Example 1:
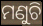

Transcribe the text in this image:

ମଣୁଚି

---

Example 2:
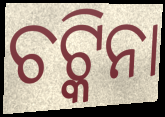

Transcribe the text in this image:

ଚଟ୍କିନା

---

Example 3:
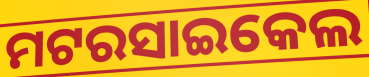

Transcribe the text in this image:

ମଟରସାଇକେଲ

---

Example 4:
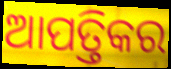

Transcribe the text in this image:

ଆପତ୍ତିକର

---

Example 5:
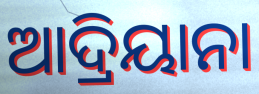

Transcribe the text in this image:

ଆଦ୍ରିୟାନା